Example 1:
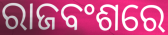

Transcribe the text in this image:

ରାଜବଂଶରେ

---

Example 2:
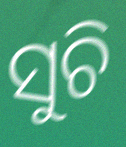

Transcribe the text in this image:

ସୁଚି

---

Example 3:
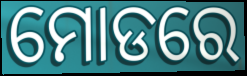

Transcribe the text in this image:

ମୋଡରେ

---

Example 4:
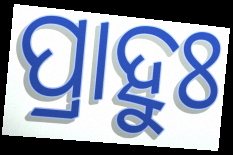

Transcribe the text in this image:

ପ୍ରାହୁଃ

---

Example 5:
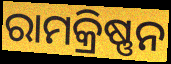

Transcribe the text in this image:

ରାମକ୍ରିଷ୍ଣନ